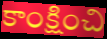
కాంక్షించి